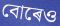
বোৰেও